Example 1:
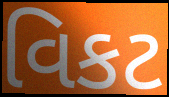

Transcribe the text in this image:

વિકટ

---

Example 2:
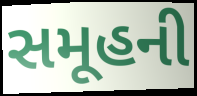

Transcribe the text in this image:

સમૂહની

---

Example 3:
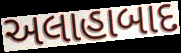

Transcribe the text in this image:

અલાહાબાદ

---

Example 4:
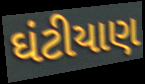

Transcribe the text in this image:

ઘંટીયાણ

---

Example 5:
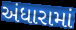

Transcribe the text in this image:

અંધારામાં